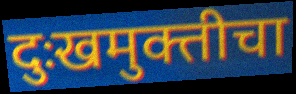
दुःखमुक्तीचा